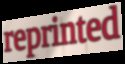
reprinted